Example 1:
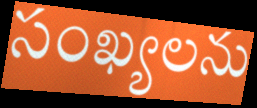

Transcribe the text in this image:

సంఖ్యలను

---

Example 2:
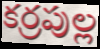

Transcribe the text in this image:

కర్రపుల్ల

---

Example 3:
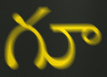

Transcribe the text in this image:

గూ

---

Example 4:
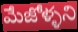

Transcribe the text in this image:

మేజోళ్ళని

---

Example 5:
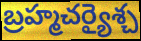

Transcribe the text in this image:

బ్రహ్మచర్యైశ్చ